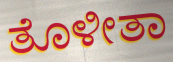
ತೊಳೀತಾ